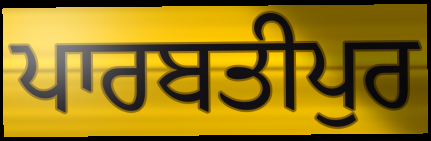
ਪਾਰਬਤੀਪੁਰ